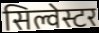
सिल्वेस्टर